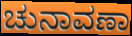
ಚುನಾವಣಾ